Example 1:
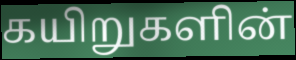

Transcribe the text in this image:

கயிறுகளின்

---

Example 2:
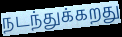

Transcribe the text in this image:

நடந்துக்கறது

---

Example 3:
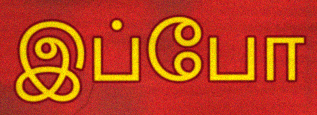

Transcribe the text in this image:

இப்போ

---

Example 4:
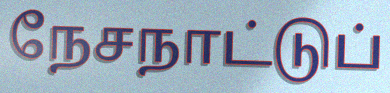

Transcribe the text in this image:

நேசநாட்டுப்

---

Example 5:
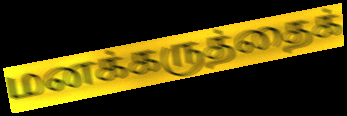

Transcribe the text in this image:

மனக்கருத்தைக்